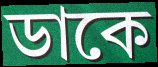
ডাকে